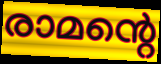
രാമന്റെ